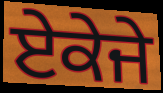
ਏਕੇਜੇ